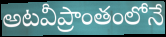
అటవీప్రాంతంలోనే